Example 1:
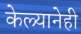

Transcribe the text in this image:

केल्यानेही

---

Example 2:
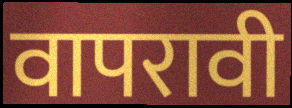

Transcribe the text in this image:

वापरावी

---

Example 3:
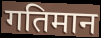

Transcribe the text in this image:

गतिमान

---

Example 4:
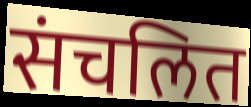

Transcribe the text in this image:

संचलित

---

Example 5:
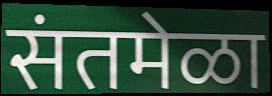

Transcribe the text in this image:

संतमेळा